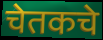
चेतकचे